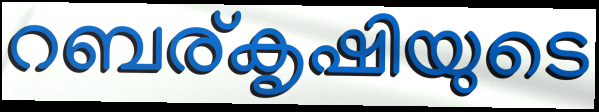
റബര്കൃഷിയുടെ